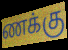
ணக்கு